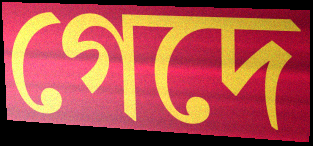
গেদে